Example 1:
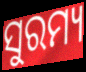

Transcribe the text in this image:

ସୁରମ୍ୟ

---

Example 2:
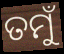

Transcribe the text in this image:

ତମୁଁ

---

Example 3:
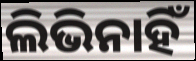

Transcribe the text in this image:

ଲିଭିନାହିଁ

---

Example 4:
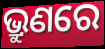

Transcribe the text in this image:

ଭ୍ରୁଣରେ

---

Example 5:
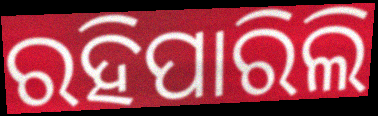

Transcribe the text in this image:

ରହିପାରିଲି